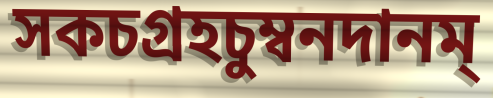
সকচগ্রহচুম্বনদানম্